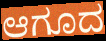
ಆಗೂದ